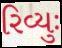
રિવ્યુઃ